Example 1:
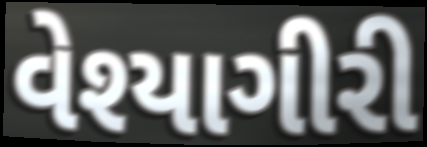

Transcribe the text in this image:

વેશ્યાગીરી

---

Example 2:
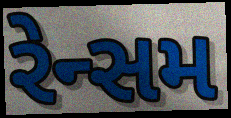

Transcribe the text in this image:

રેન્સમ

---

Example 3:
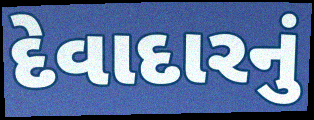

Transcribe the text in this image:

દેવાદારનું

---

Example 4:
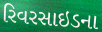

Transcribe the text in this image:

રિવરસાઇડના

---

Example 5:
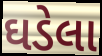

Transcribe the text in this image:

ઘડેલા